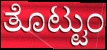
ತೊಟ್ಟುಂ